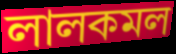
লালকমল